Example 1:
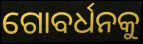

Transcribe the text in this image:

ଗୋବର୍ଧନକୁ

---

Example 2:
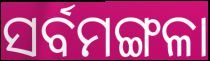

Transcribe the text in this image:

ସର୍ବମଙ୍ଗଳା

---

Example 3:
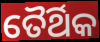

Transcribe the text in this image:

ତୈର୍ଥିକ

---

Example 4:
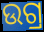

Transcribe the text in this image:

ଉଗ୍ର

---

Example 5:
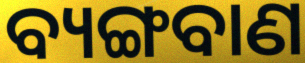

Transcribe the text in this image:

ବ୍ୟଙ୍ଗବାଣ